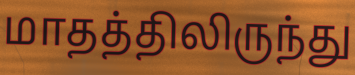
மாதத்திலிருந்து